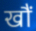
खौं